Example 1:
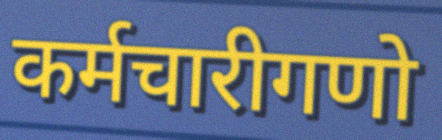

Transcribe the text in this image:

कर्मचारीगणो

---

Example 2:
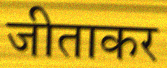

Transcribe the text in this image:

जीताकर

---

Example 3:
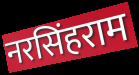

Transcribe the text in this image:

नरसिंहराम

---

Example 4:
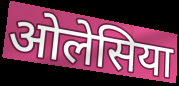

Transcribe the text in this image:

ओलेसिया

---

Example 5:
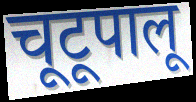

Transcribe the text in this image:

चूटूपालू